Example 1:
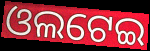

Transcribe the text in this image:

ଓଲଟେଇ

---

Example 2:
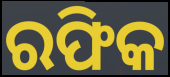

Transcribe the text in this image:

ରଫିକ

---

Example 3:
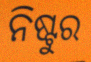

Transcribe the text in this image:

ନିଷ୍ଟୁର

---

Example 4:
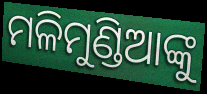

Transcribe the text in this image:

ମଳିମୁଣ୍ଡିଆଙ୍କୁ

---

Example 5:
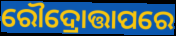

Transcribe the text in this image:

ରୌଦ୍ରୋତ୍ତାପରେ